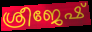
ശ്രീജേഷ്